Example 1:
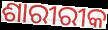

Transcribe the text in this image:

ଶାରୀରୀକ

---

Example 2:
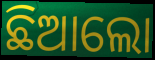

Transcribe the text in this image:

ଛିଆଲୋ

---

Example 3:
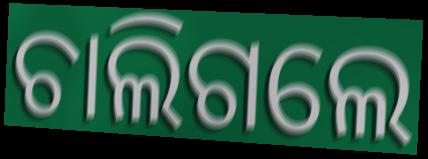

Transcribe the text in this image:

ଚାଲିଗଲେ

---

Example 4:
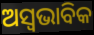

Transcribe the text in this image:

ଅସ୍ୱଭାବିକ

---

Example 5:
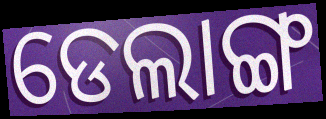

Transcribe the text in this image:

ଡେଲାଙ୍ଗ